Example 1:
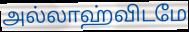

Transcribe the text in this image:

அல்லாஹ்விடமே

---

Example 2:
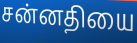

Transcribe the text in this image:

சன்னதியை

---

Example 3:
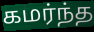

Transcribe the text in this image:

கமர்ந்த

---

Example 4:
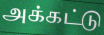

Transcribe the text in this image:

அக்கட்டு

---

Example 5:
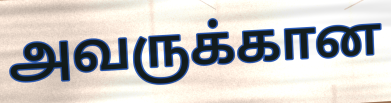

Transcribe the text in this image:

அவருக்கான